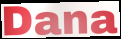
Dana